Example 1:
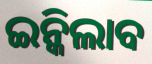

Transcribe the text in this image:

ଇନ୍କିଲାବ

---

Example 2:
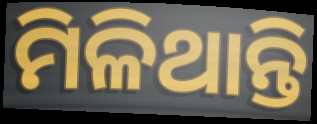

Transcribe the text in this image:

ମିଳିଥାନ୍ତି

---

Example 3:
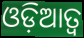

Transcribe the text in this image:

ଓଡ଼ିଆତ୍ୱ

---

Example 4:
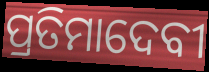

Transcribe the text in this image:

ପ୍ରତିମାଦେବୀ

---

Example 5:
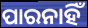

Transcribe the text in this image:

ପାରନାହିଁ